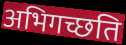
अभिगच्छति